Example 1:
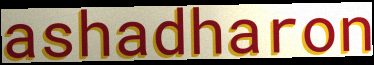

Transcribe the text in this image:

ashadharon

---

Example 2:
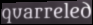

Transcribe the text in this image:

quarreled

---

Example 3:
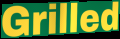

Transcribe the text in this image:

Grilled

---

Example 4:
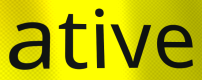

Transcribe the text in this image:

ative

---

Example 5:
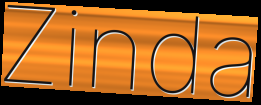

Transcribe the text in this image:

Zinda